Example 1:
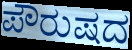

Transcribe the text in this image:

ಪೌರುಷದ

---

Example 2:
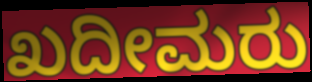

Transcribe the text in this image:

ಖದೀಮರು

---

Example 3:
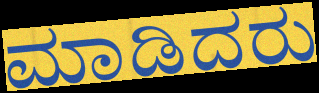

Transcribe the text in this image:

ಮಾಡಿದರು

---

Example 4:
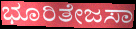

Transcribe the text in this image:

ಭೂರಿತೇಜಸಾ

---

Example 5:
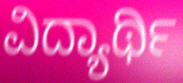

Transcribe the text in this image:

ವಿದ್ಯಾರ್ಥಿ